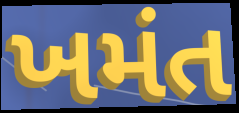
ખમંત